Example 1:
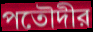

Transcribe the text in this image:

পতৌদীর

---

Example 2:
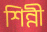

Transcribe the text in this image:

শিন্নী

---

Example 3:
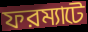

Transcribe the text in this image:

ফরম্যাটে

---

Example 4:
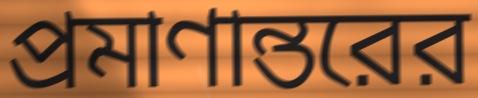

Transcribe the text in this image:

প্রমাণান্তরের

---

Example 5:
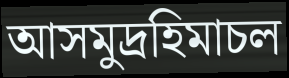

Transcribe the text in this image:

আসমুদ্রহিমাচল